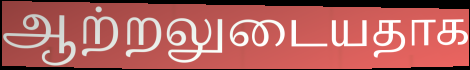
ஆற்றலுடையதாக